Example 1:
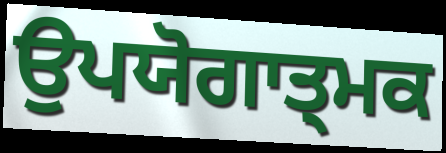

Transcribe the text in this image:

ਉਪਯੋਗਾਤ੍ਮਕ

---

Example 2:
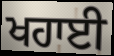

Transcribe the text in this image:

ਖਹਾਈ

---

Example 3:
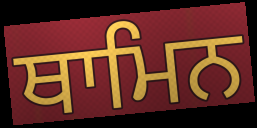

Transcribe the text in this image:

ਥਾਮਿਨ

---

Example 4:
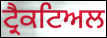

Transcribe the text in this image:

ਟ੍ਰੈਕਟਿਅਲ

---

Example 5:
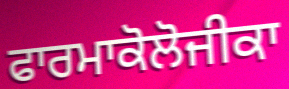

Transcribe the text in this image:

ਫਾਰਮਾਕੋਲੋਜੀਕਾ